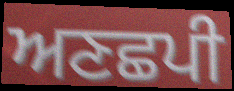
ਅਣਛਪੀ